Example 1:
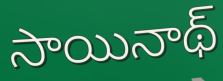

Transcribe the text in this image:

సాయినాథ్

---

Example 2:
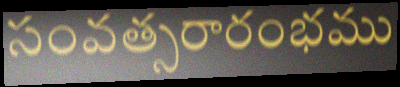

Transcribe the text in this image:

సంవత్సరారంభము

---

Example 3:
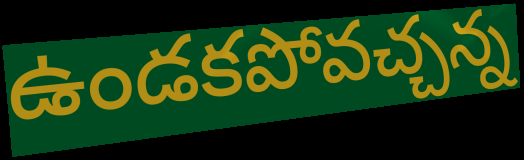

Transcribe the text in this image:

ఉండకపోవచ్చన్న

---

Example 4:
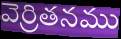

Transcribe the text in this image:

వెర్రితనము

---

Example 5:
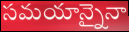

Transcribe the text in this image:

సమయాన్నైనా